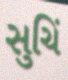
સુચિં